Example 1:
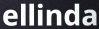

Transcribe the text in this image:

ellinda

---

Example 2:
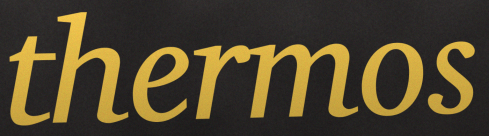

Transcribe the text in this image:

thermos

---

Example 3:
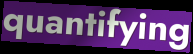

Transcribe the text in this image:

quantifying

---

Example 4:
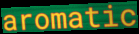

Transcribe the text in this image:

aromatic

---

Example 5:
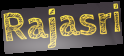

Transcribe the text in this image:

Rajasri